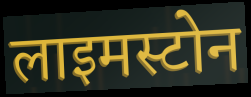
लाइमस्टोन